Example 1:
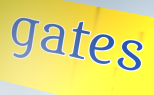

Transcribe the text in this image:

gates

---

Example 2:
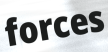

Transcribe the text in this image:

forces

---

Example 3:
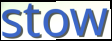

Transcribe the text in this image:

stow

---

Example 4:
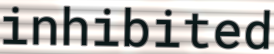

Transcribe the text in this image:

inhibited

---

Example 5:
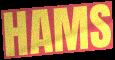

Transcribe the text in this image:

HAMS